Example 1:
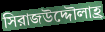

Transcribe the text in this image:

সিরাজউদ্দৌলাহ্র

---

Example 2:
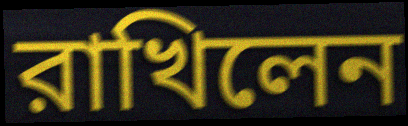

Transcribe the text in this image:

রাখিলেন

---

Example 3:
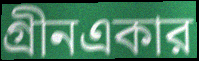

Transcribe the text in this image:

গ্রীনএকার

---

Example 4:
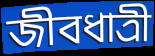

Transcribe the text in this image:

জীবধাত্রী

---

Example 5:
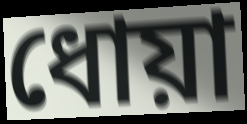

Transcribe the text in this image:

ধোয়া